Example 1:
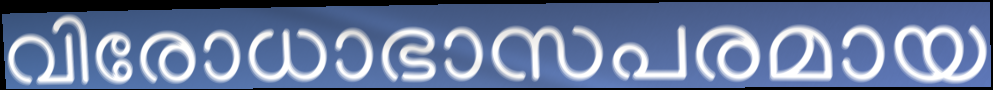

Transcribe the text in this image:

വിരോധാഭാസപരമായ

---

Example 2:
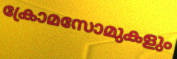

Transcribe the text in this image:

ക്രോമസോമുകളും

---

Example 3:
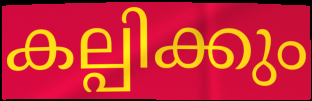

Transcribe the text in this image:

കല്പിക്കും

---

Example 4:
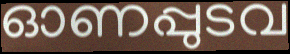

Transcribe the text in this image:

ഓണപ്പുടവ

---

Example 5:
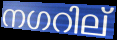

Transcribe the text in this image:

നഗറില്